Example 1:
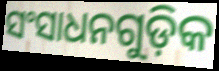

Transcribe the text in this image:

ସଂସାଧନଗୁଡ଼ିକ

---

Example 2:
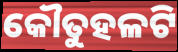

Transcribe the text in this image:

କୌତୁହଳଟି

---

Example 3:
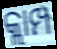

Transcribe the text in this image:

କ୍ଲାମ୍ପ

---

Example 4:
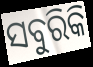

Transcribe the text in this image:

ସବୁରିକି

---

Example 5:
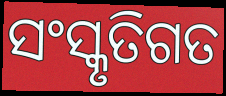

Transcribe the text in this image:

ସଂସ୍କୃତିଗତ